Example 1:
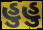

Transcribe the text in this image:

હુહુ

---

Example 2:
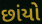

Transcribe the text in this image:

છાંયો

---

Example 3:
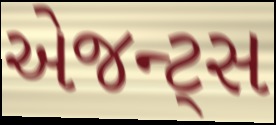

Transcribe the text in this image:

એજન્ટ્સ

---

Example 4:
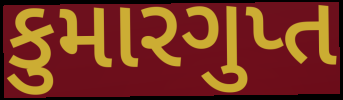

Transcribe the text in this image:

કુમારગુપ્ત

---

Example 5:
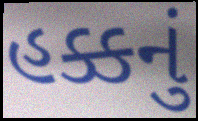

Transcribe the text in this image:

હક્કનું